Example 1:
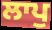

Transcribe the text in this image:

ਲਾਪੁ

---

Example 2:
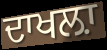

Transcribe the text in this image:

ਦਾਖਲ਼ਾ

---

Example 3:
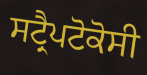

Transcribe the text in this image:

ਸਟ੍ਰੈਪਟੋਕੋਸੀ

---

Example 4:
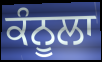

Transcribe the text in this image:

ਕੰਨੂਲਾ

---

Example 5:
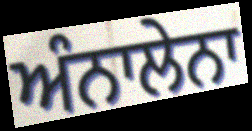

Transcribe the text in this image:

ਅੰਨਾਲੇਨਾ